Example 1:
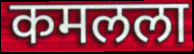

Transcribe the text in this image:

कमलला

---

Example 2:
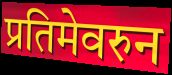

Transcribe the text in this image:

प्रतिमेवरुन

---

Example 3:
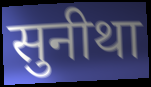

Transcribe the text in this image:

सुनीथा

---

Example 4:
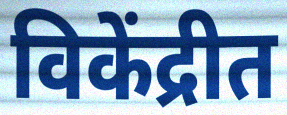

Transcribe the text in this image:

विकेंद्रीत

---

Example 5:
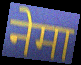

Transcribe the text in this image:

नेमा